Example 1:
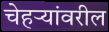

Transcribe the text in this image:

चेहऱ्यांवरील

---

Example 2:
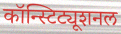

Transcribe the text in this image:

कॉन्स्टिट्यूशनल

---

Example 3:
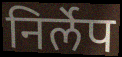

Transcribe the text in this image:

निर्लेप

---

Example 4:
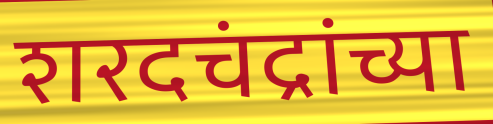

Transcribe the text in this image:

शरदचंद्रांच्या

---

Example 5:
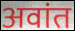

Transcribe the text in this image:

अवांत